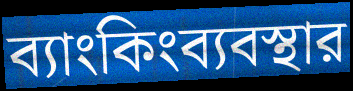
ব্যাংকিংব্যবস্থার